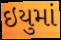
ઇયુમાં